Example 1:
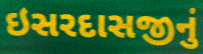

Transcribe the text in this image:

ઇસરદાસજીનું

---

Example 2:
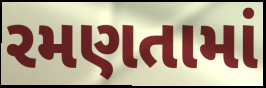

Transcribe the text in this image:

રમણતામાં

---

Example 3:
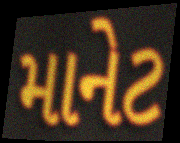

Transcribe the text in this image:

માનેટ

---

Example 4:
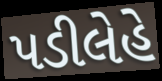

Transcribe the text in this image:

પડીલેહે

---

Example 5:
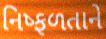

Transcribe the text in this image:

નિષ્ફળતાને